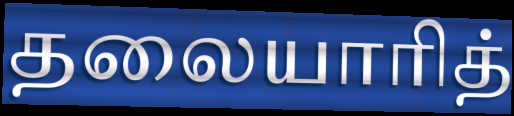
தலையாரித்